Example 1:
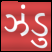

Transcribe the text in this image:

ઝંડુ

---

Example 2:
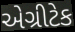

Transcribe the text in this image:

એગ્રીટેક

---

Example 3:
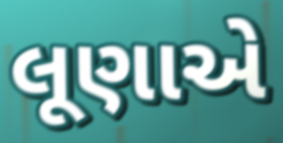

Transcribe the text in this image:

લૂણાએ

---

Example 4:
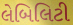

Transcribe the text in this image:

લેબિલિટી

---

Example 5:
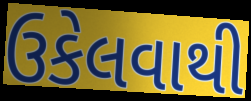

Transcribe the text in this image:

ઉકેલવાથી